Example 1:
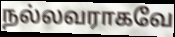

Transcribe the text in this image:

நல்லவராகவே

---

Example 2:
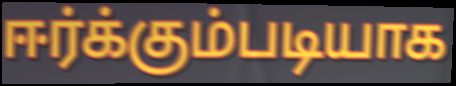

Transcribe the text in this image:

ஈர்க்கும்படியாக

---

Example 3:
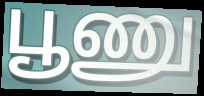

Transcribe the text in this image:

பூணு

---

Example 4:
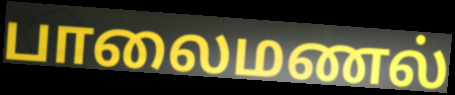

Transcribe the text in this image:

பாலைமணல்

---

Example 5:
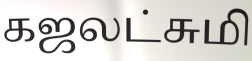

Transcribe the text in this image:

கஜலட்சுமி